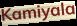
Kamiyala